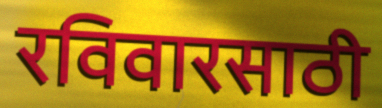
रविवारसाठी